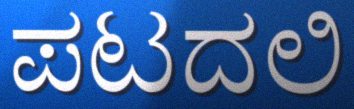
ಪಟದಲಿ